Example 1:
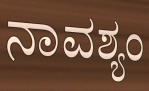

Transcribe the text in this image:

ನಾವಶ್ಯಂ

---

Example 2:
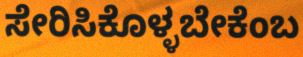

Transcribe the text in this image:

ಸೇರಿಸಿಕೊಳ್ಳಬೇಕೆಂಬ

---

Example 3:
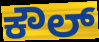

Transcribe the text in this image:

ಕೌಲ್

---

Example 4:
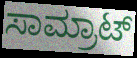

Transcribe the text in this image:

ಸಾಮ್ರಾಟ್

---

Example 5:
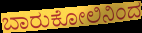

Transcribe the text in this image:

ಬಾರುಕೋಲಿನಿಂದ